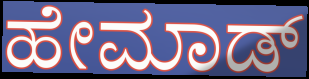
ಹೇಮಾಡ್